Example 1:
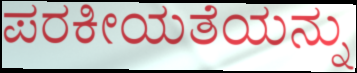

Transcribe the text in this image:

ಪರಕೀಯತೆಯನ್ನು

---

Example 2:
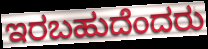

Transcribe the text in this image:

ಇರಬಹುದೆಂದರು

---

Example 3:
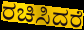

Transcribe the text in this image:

ರಚಿಸಿದರೆ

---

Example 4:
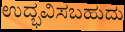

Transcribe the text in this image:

ಉದ್ಭವಿಸಬಹುದು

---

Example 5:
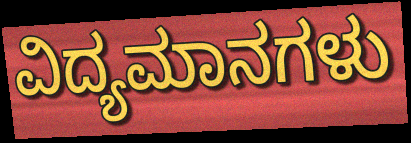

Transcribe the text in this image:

ವಿದ್ಯಮಾನಗಳು